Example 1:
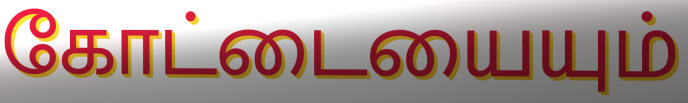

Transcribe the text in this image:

கோட்டையையும்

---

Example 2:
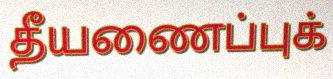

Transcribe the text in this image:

தீயணைப்புக்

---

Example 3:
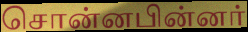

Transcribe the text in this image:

சொன்னபின்னர்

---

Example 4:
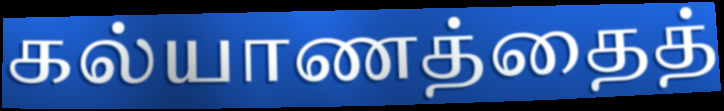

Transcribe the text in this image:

கல்யாணத்தைத்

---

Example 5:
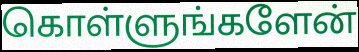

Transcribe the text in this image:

கொள்ளுங்களேன்